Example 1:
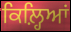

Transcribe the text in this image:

ਕਿਲ਼੍ਹਿਆਂ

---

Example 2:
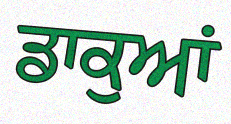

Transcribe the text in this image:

ਡਾਕੁਆਂ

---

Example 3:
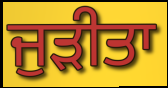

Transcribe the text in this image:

ਜੁੜੀਤਾ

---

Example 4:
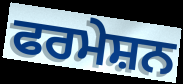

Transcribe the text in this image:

ਫਰਮੇਸ਼ਨ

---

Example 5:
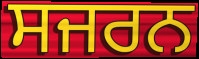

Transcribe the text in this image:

ਸਜਰਨ